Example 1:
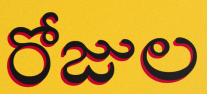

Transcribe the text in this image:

రోజుల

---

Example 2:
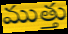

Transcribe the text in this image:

ముత్తు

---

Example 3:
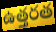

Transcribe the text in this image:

ఉత్తరత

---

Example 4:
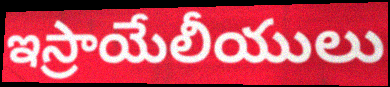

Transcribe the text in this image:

ఇస్రాయేలీయులు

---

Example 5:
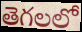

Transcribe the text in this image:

తెగలలో